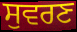
ਸੁਵਰਣ